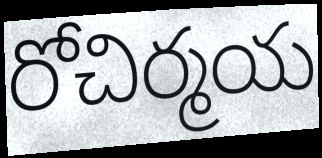
రోచిర్మయ